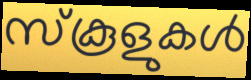
സ്കൂളുകൾ